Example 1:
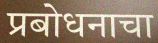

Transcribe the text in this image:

प्रबोधनाचा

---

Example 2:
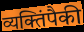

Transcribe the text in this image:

व्यक्तिंपैकी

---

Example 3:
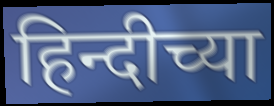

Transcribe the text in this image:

हिन्दीच्या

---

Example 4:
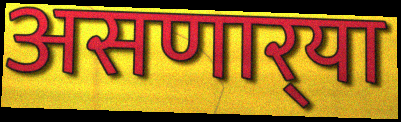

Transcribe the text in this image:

असणार्‍या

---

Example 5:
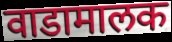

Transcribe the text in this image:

वाडामालक